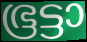
ഭൂട്ടാ